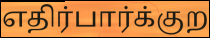
எதிர்பார்க்குற